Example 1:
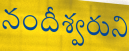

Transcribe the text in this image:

నందీశ్వరుని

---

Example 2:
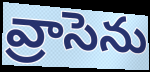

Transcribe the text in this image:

వ్రాసెను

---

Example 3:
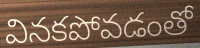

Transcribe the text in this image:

వినకపోవడంతో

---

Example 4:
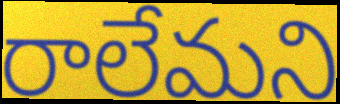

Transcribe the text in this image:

రాలేమని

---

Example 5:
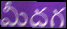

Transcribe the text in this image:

మీదగ